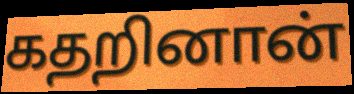
கதறினான்